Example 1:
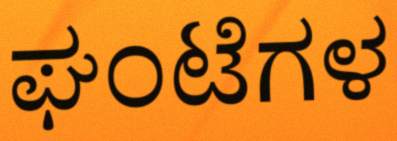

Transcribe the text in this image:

ಘಂಟೆಗಳ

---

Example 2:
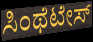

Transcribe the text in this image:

ಸಿಂಥೆಟೇಸ್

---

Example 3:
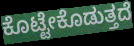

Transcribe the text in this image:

ಕೊಟ್ಟೇಕೊಡುತ್ತದೆ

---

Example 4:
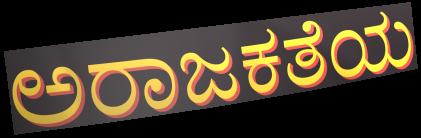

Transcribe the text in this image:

ಅರಾಜಕತೆಯ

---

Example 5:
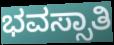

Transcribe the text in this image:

ಭವಸ್ಸಾತಿ